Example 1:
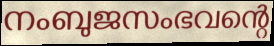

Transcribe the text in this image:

നംബുജസംഭവന്റെ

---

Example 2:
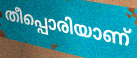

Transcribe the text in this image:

തീപ്പൊരിയാണ്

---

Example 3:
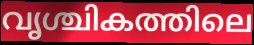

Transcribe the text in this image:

വൃശ്ചികത്തിലെ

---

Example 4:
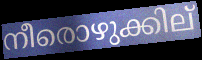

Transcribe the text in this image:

നീരൊഴുക്കില്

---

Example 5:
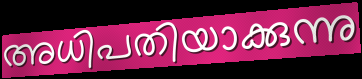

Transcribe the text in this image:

അധിപതിയാക്കുന്നു